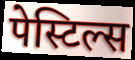
पेस्टिल्स